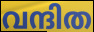
വന്ദിത